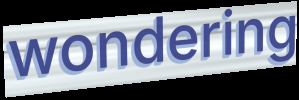
wondering